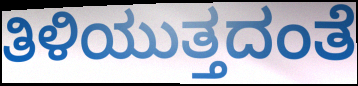
ತಿಳಿಯುತ್ತದಂತೆ